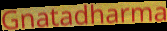
Gnatadharma